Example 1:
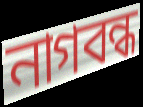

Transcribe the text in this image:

নাগবন্ধ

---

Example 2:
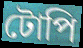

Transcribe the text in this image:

টোপি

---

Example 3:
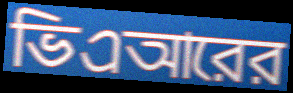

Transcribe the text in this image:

ভিএআরের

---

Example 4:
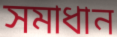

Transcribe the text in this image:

সমাধান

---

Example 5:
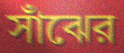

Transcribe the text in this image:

সাঁঝের